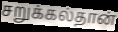
சறுக்கல்தான்